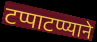
टप्पाटप्प्याने